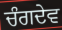
ਚੰਗਦੇਵ